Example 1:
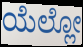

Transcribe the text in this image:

ಯೆಲ್ಲೋ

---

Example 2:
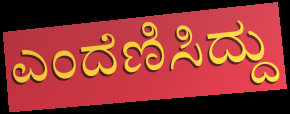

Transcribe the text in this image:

ಎಂದೆಣಿಸಿದ್ದು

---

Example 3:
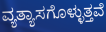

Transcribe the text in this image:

ವ್ಯತ್ಯಾಸಗೊಳ್ಳುತ್ತವೆ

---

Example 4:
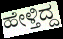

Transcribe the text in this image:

ಹೇಳ್ತಿದ್ದ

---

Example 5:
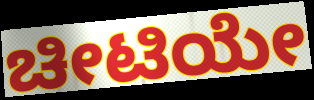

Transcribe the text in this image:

ಚೀಟಿಯೇ